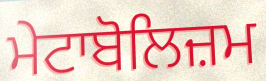
ਮੇਟਾਬੋਲਿਜ਼ਮ